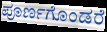
ಪೂರ್ಣಗೊಂಡರೆ